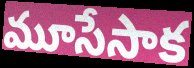
మూసేసాక